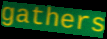
gathers